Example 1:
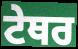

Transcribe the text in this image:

ਟੇਥਰ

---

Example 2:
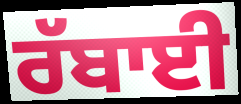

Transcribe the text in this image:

ਰੱਬਾਈ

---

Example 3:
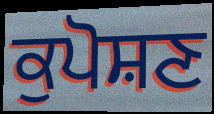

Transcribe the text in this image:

ਕੁਪੋਸ਼ਣ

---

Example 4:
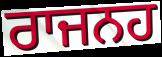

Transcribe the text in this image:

ਰਾਜਨਹ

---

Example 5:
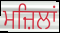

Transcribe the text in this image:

ਮਜ਼ਿਲਾਂ